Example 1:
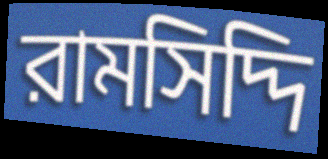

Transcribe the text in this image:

রামসিদ্দি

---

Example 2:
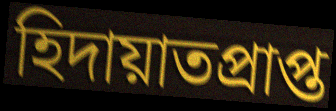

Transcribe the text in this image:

হিদায়াতপ্রাপ্ত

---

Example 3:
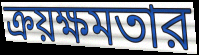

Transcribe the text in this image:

ক্রয়ক্ষমতার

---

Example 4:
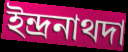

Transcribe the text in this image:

ইন্দ্রনাথদা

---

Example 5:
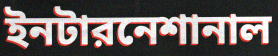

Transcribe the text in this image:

ইনটারনেশানাল